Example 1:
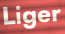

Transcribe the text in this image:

Liger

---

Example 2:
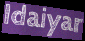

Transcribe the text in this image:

Idaiyar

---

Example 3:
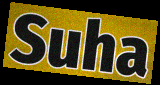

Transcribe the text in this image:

Suha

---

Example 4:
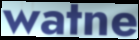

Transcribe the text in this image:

watne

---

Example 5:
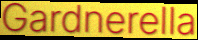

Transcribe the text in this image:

Gardnerella